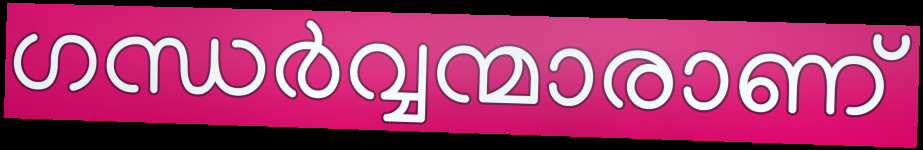
ഗന്ധർവ്വന്മാരാണ്